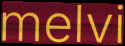
melvi